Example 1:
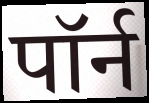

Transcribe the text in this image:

पॉर्न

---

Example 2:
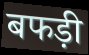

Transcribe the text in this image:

बफड़ी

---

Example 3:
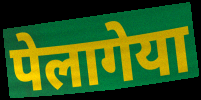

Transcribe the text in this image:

पेलागेया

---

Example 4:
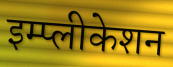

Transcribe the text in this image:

इम्प्लीकेशन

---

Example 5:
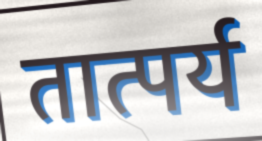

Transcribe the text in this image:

तात्पर्य